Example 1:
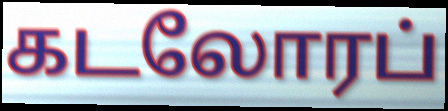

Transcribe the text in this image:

கடலோரப்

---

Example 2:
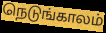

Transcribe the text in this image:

நெடுங்காலம்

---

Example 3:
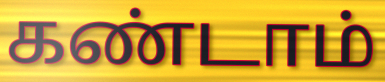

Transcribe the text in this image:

கண்டாம்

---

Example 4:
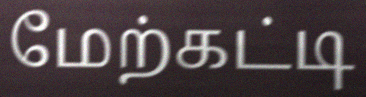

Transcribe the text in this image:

மேற்கட்டி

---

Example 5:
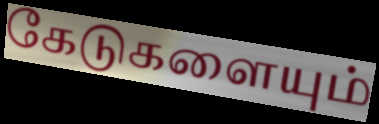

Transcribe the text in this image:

கேடுகளையும்